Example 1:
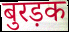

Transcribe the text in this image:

बुरड़क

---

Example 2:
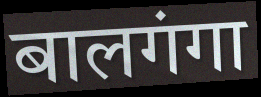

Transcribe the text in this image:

बालगंगा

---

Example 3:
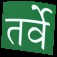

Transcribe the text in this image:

तर्वे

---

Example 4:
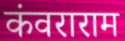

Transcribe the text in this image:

कंवराराम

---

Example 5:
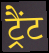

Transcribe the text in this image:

ट्रैंट